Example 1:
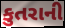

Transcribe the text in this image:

કુતરાની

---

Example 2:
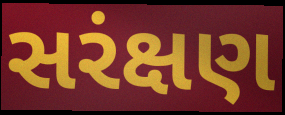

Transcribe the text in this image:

સરંક્ષણ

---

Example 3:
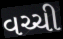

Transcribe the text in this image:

વચ્ચી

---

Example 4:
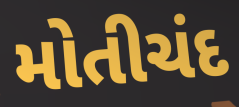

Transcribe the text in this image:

મોતીચંદ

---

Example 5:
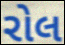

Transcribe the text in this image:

રોલ